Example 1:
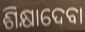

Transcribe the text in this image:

ଶିକ୍ଷାଦେବା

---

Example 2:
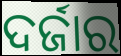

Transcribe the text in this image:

ଦର୍ଜାର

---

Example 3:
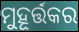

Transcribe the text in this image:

ମୁହୂର୍ତ୍ତକର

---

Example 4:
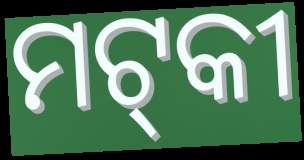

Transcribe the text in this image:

ମଟ୍‌କୀ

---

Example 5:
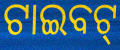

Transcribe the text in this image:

ଟାଇବଟ୍